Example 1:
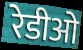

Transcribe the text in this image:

रेडीओ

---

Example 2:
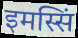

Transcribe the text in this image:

इमस्सिं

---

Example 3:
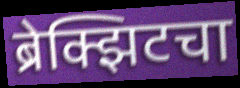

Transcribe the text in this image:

ब्रेक्झिटचा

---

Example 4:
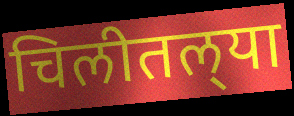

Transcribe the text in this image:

चिलीतल्या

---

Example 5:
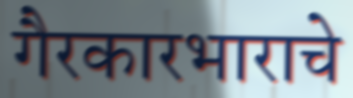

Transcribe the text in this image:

गैरकारभाराचे